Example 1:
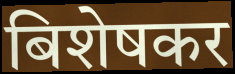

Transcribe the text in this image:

बिशेषकर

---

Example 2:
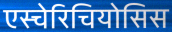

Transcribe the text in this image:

एस्चेरिचियोसिस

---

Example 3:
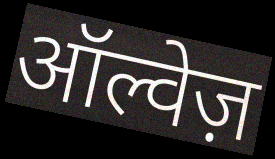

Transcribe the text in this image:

ऑल्वेज़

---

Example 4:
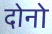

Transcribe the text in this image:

दोनो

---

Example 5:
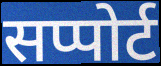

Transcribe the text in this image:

सप्पोर्ट